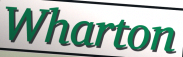
Wharton